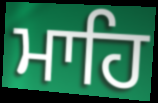
ਮਾਹਿ